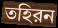
তহিরন